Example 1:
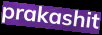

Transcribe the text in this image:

prakashit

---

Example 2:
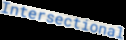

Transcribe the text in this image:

Intersectional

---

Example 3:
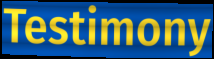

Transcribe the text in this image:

Testimony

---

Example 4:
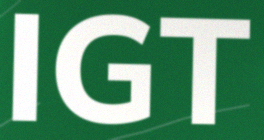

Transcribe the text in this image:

IGT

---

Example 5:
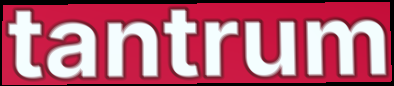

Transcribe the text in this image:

tantrum